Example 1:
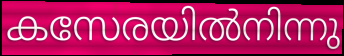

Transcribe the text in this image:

കസേരയിൽനിന്നു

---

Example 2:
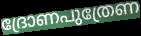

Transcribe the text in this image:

ദ്രോണപുത്രേണ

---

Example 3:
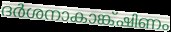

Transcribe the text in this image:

ദർശനാകാങ്ക്ഷിണം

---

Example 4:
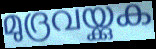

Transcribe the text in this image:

മുദ്രവയ്ക്കുക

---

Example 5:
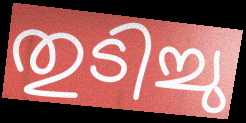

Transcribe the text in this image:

തുടിച്ചു